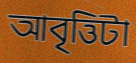
আবৃত্তিটা